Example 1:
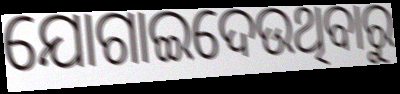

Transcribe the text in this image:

ଯୋଗାଇଦେଉଥିବାରୁ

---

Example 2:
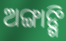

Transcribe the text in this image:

ଅଙ୍ଗାଙ୍ଗି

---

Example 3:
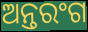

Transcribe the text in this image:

ଅନ୍ତରଂଗ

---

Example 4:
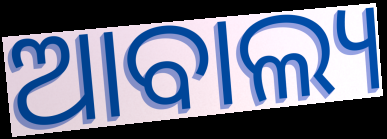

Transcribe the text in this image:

ଆବାଲ୍ୟ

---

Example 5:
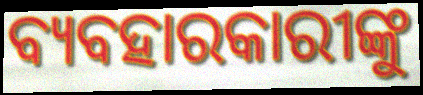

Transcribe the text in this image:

ବ୍ୟବହାରକାରୀଙ୍କୁ